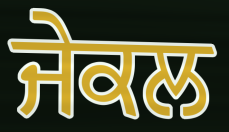
ਜੇਕਲ